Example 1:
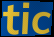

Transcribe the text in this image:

tic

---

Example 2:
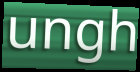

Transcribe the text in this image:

ungh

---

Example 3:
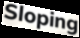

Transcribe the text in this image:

Sloping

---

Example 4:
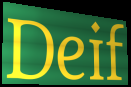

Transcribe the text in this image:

Deif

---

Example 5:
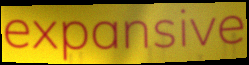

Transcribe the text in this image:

expansive